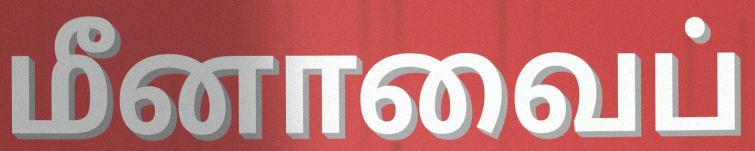
மீனாவைப்